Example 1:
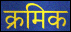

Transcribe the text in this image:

क्रमिक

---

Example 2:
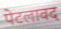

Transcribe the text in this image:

पेटलावद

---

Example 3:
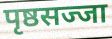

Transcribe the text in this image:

पृष्ठसज्जा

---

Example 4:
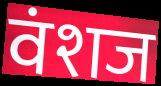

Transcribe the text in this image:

वंशज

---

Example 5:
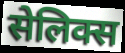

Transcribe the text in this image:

सेलिक्स